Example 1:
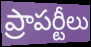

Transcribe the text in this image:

ప్రాపర్టీలు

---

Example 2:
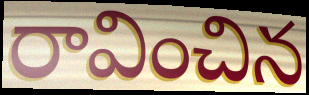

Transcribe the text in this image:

రావించిన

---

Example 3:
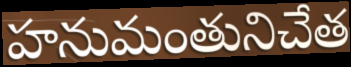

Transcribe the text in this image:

హనుమంతునిచేత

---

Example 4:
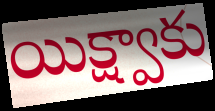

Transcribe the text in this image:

యిక్ష్వాకు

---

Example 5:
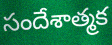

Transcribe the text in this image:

సందేశాత్మక